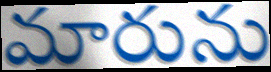
మారును